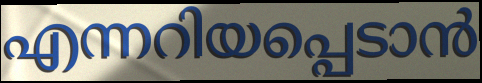
എന്നറിയപ്പെടാൻ